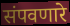
संपवणारे